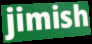
jimish